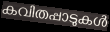
കവിതപ്പാടുകൾ